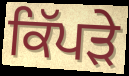
ਕਿੱਪੜੇ